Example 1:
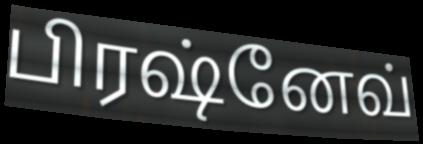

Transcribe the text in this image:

பிரஷ்னேவ்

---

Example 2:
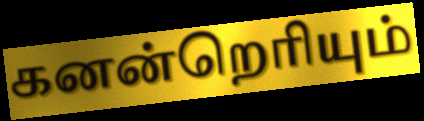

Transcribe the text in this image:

கனன்றெரியும்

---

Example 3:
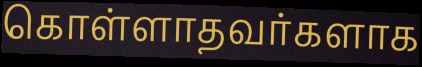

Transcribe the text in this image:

கொள்ளாதவர்களாக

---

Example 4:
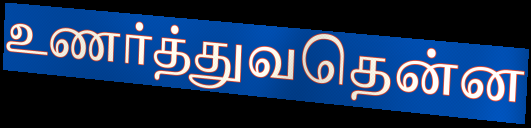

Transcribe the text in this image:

உணர்த்துவதென்ன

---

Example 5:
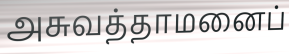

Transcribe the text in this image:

அசுவத்தாமனைப்